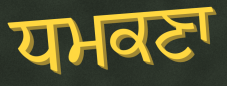
ਧਮਕਣਾ